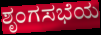
ಶೃಂಗಸಭೆಯ